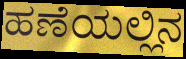
ಹಣೆಯಲ್ಲಿನ